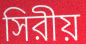
সিরীয়